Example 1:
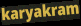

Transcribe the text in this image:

karyakram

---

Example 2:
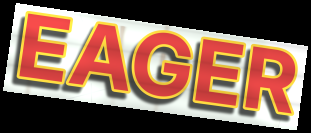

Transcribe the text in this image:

EAGER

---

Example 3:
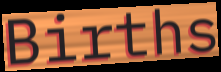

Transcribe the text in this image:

Births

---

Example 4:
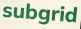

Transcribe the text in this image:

subgrid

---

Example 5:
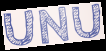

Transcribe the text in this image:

UNU